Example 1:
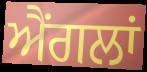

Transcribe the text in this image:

ਐਂਗਲਾਂ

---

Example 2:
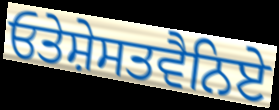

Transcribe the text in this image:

ਓਤੇਸ਼ੇਸਤਵੈਨਿਏ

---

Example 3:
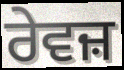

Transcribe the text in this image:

ਰੇਵਜ਼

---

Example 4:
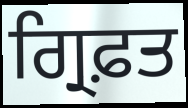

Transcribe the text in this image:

ਗ੍ਰਿਫ਼ਤ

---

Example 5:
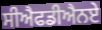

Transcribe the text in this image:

ਸੀਐਫਡੀਐਨਏ